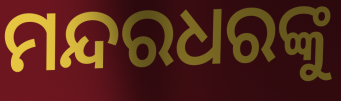
ମନ୍ଦରଧରଙ୍କୁ